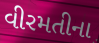
વીરમતીના